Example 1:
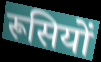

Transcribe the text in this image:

रूसियों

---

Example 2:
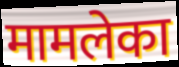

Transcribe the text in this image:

मामलेका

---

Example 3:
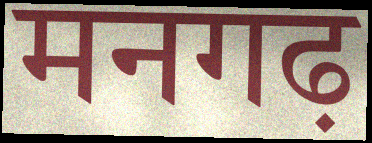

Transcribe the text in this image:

मनगढ़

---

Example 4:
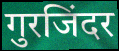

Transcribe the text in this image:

गुरजिंदर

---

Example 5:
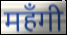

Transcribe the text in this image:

महँगी